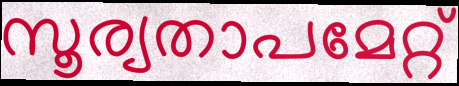
സൂര്യതാപമേറ്റ്